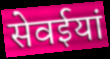
सेवईयां